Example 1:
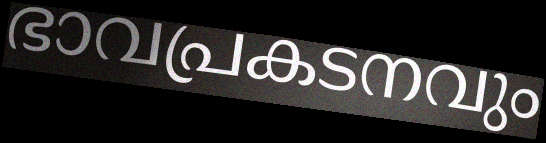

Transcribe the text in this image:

ഭാവപ്രകടനവും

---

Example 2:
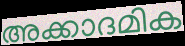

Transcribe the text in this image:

അക്കാദമിക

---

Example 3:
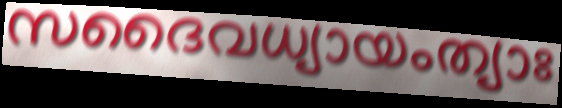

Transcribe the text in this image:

സദൈവധ്യായംത്യാഃ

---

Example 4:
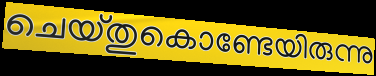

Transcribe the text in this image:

ചെയ്തുകൊണ്ടേയിരുന്നു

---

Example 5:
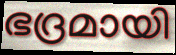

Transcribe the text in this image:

ഭദ്രമായി